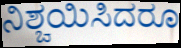
ನಿಶ್ಚಯಿಸಿದರೂ